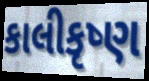
કાલીકૃષ્ણ